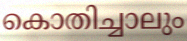
കൊതിച്ചാലും